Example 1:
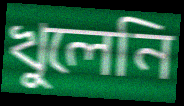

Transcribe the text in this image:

খুলেনি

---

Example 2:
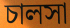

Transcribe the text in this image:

চালসা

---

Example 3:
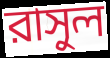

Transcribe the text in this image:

রাসুল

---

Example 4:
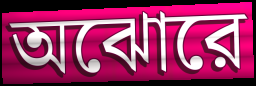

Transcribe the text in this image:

অঝোরে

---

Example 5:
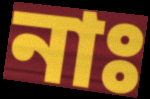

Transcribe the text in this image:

নাঃ